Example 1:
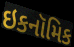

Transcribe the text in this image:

ઇકનૉમિક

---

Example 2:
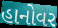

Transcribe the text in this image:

હાનોવર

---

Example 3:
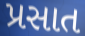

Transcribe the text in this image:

પ્રસાત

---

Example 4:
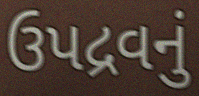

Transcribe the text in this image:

ઉપદ્રવનું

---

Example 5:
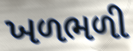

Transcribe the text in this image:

ખળભળી